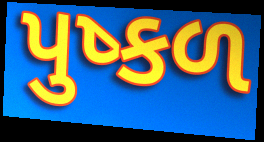
પુષ્કળ